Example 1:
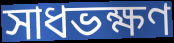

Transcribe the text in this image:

সাধভক্ষণ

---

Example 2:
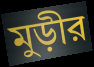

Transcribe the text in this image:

মুড়ীর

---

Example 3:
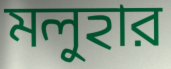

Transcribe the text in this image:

মলুহার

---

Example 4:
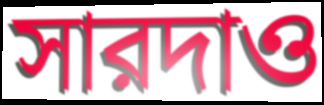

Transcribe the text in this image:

সারদাও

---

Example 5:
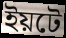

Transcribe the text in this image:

ইয়টে